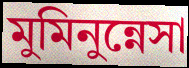
মুমিনুন্নেসা